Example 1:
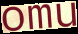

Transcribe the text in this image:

omu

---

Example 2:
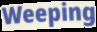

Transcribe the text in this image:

Weeping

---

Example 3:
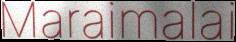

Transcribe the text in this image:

Maraimalai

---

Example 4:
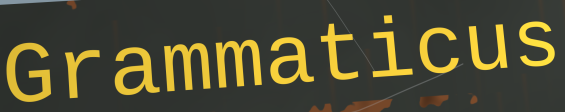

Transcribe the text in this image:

Grammaticus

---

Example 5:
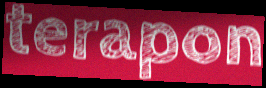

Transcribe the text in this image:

terapon